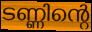
ടണ്ണിന്റെ